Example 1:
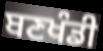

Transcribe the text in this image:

ਬਣਖੰਡੀ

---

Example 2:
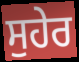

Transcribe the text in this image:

ਸੁਹੇਰ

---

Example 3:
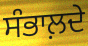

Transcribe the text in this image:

ਸੰਭਾਲ਼ਦੇ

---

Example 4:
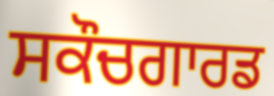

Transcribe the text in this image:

ਸਕੌਚਗਾਰਡ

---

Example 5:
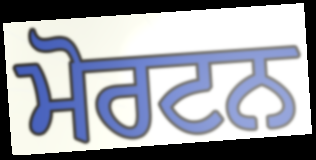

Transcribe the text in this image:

ਮੋਰਟਨ